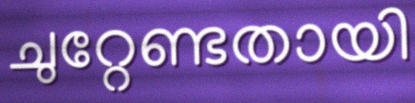
ചുറ്റേണ്ടതായി